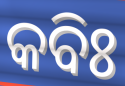
କବିଃ